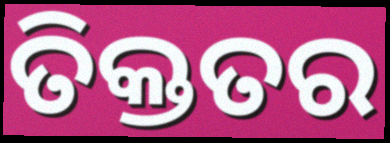
ତିକ୍ତତର